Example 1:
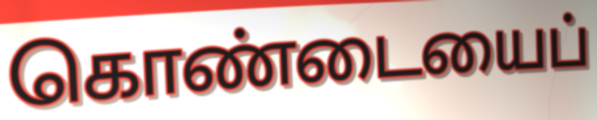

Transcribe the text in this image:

கொண்டையைப்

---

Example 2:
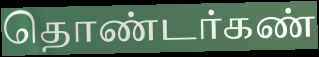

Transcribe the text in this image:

தொண்டர்கண்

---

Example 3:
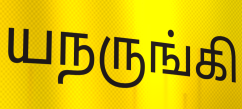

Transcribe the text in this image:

யநருங்கி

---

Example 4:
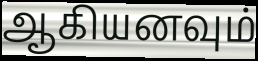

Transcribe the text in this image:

ஆகியனவும்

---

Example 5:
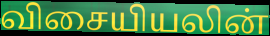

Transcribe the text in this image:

விசையியலின்